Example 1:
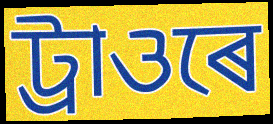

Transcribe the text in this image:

ট্ৰাওৰে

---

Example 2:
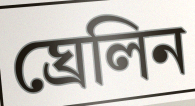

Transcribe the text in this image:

ঘ্ৰেলিন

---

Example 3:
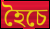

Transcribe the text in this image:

হৈচে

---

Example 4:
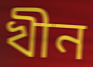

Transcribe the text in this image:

খীন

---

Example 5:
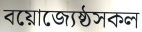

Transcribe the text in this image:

বয়োজ্যেষ্ঠসকল